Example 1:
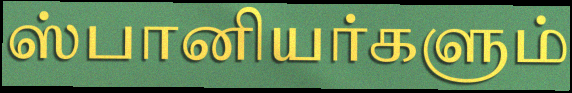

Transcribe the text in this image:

ஸ்பானியர்களும்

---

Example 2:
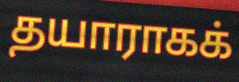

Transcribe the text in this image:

தயாராகக்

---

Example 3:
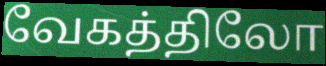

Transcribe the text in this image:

வேகத்திலோ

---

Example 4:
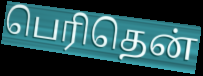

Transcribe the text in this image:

பெரிதென்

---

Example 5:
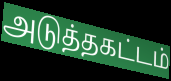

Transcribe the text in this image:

அடுத்தகட்டம்